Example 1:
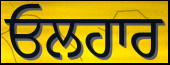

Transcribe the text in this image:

ਓਲਹਾਰ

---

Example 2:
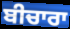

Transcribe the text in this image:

ਬੀਚਾਰਾ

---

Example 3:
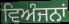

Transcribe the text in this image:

ਵਿਅੰਜਨਾਂ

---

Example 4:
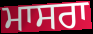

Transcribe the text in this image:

ਮਾਸਰਾ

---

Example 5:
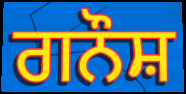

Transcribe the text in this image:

ਗਨੌਸ਼